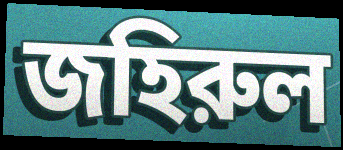
জহিরুল